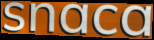
snaca